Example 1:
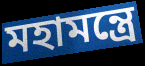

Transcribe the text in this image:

মহামন্ত্রে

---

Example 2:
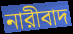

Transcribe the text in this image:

নারীবাদ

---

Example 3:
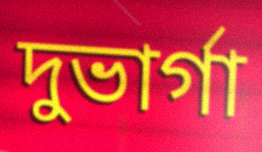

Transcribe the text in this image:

দুভার্গা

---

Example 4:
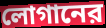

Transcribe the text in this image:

লোগানের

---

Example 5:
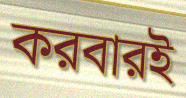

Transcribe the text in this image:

করবারই